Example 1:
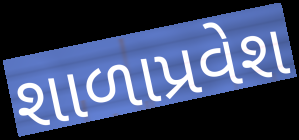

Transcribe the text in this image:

શાળાપ્રવેશ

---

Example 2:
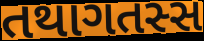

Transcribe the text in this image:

તથાગતસ્સ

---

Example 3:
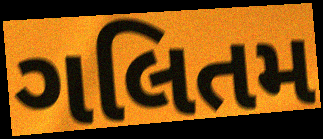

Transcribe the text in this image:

ગલિતમ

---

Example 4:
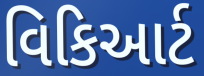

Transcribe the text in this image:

વિકિઆર્ટ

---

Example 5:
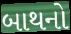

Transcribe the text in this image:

બાથનો